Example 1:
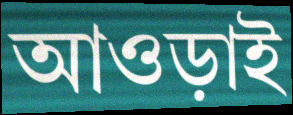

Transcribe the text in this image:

আওড়াই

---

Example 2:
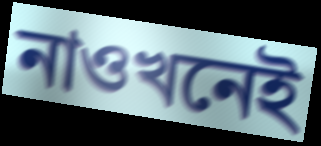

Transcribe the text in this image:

নাওখনেই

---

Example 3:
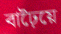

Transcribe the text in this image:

বাঢ়ৈয়ে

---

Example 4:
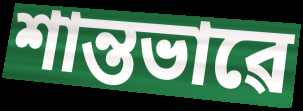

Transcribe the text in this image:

শান্তভাৱে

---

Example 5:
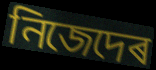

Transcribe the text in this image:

নিজেদেৰ